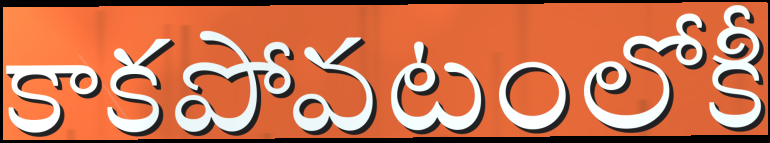
కాకపోవటంలోకీ